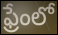
ఫ్రేంలో